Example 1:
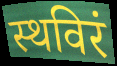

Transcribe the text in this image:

स्थविरं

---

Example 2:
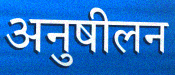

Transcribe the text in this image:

अनुषीलन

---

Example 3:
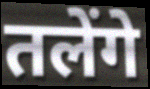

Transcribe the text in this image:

तलेंगे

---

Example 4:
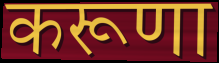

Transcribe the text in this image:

करूणा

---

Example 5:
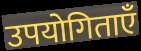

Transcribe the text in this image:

उपयोगिताएँ